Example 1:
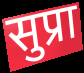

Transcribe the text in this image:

सुप्रा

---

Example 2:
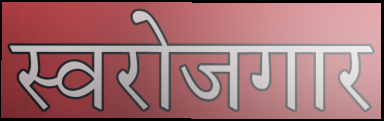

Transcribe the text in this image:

स्वरोजगार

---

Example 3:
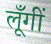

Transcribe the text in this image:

लूँगीं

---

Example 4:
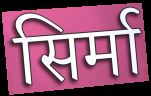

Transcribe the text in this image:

सिर्मा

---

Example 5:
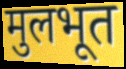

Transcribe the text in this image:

मुलभूत